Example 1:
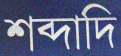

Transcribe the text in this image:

শব্দাদি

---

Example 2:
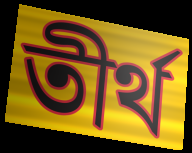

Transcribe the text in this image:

তীর্থ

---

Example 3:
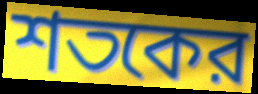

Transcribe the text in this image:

শতকের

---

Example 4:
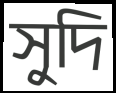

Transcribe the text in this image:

সুদি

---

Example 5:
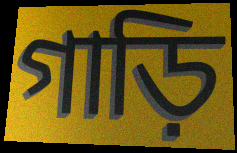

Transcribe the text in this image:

গাড়ি